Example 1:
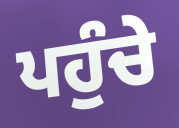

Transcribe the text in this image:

ਪਹੁੰਚੇ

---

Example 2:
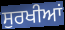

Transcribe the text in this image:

ਸੁਰਖੀਆਂ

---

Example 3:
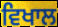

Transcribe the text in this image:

ਵਿਖਾਲ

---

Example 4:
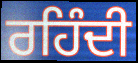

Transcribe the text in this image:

ਰਹਿੰਦੀ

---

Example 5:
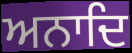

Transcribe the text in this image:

ਅਨਾਦਿ